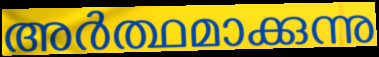
അർത്ഥമാക്കുന്നു